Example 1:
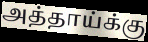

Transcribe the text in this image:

அத்தாய்க்கு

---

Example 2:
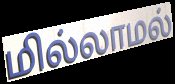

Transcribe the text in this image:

மில்லாமல்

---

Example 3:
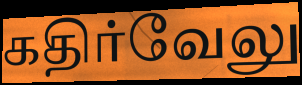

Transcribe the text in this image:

கதிர்வேலு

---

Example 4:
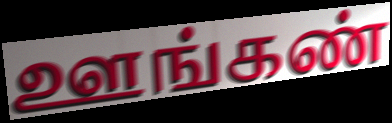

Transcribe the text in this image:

ஊங்கண்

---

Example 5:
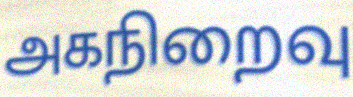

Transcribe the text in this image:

அகநிறைவு